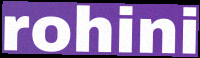
rohini